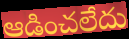
ఆడించలేదు